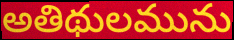
అతిథులమును